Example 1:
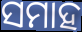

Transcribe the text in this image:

ସମାହ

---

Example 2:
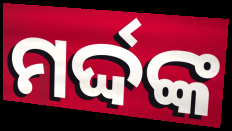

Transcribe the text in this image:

ମର୍ଦ୍ଦଙ୍କ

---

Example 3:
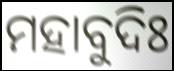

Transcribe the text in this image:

ମହାବୁଦିଃ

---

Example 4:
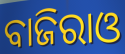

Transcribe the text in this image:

ବାଜିରାଓ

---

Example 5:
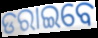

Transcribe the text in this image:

ଡରାଇବେ